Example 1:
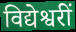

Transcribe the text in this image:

विद्येश्वरीं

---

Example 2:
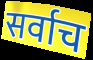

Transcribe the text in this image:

सर्वाच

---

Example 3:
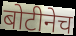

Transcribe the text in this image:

बोटीनेच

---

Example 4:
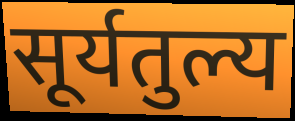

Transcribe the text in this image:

सूर्यतुल्य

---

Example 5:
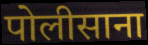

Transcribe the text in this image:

पोलीसाना